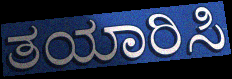
ತಯಾರಿಸಿ